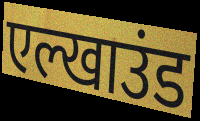
एल्खाउंड